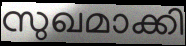
സുഖമാക്കി